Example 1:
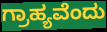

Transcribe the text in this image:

ಗ್ರಾಹ್ಯವೆಂದು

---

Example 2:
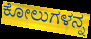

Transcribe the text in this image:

ಕೋಲುಗಳನ್ನ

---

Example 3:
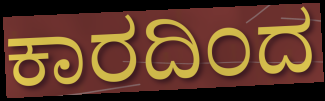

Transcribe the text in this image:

ಕಾರದಿಂದ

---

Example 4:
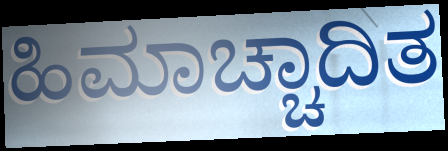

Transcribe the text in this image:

ಹಿಮಾಚ್ಚಾದಿತ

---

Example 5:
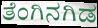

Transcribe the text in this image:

ತೆಂಗಿನಗಿಡ